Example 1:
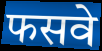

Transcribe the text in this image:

फसवे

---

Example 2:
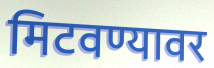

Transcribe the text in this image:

मिटवण्यावर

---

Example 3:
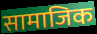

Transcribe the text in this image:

सामाजिक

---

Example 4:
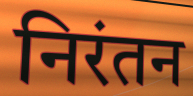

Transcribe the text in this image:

निरंतन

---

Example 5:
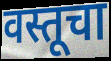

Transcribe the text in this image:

वस्तूचा